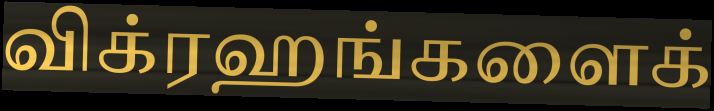
விக்ரஹங்களைக்